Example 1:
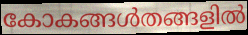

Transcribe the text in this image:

കോകങ്ങൾതങ്ങളിൽ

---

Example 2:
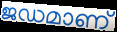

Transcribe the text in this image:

ജഡമാണ്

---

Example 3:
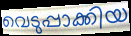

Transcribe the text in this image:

വെടുപ്പാക്കിയ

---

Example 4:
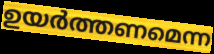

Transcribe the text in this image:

ഉയർത്തണമെന്ന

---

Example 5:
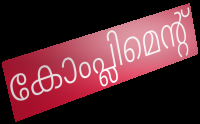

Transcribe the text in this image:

കോംപ്ലിമെന്റ്